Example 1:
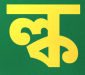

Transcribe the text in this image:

ল্ক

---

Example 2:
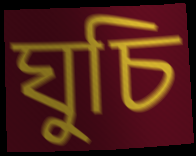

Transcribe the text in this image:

ঘুচি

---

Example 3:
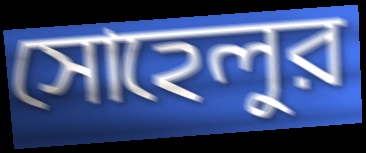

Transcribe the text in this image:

সোহেলুর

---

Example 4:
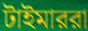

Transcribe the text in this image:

টাইমাররা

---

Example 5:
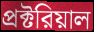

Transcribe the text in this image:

প্রক্টরিয়াল